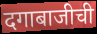
दगाबाजीची